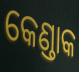
କେଣ୍ଡାକ